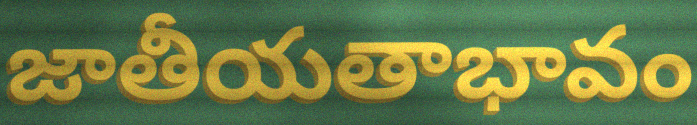
జాతీయతాభావం